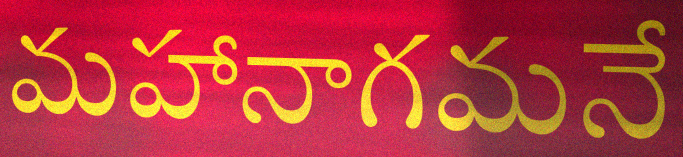
మహానాగమనే